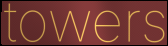
towers